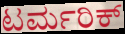
ಟರ್ಮರಿಕ್